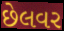
છેલવર